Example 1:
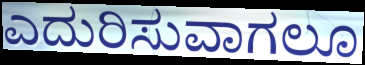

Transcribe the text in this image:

ಎದುರಿಸುವಾಗಲೂ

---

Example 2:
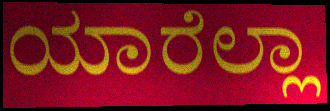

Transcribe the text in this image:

ಯಾರೆಲ್ಲಾ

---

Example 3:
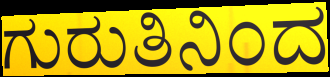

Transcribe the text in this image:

ಗುರುತಿನಿಂದ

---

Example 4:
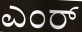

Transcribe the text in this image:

ಎಂರ್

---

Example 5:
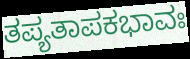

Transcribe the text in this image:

ತಪ್ಯತಾಪಕಭಾವಃ